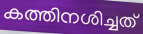
കത്തിനശിച്ചത്